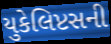
યુકેલિપ્ટસની